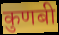
कुणबी